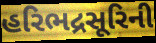
હરિભદ્રસૂરિની